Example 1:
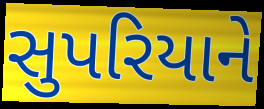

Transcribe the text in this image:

સુપરિયાને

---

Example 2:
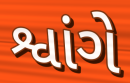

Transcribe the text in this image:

શ્વાંગે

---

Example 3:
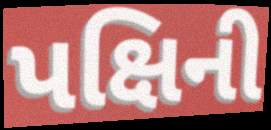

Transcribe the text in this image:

પક્ષિની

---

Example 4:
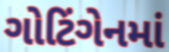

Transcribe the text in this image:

ગોટિંગેનમાં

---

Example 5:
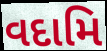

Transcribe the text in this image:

વદામિ